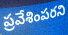
ప్రవేశింపరని